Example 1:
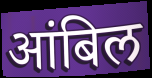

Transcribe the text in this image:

आंबिल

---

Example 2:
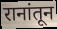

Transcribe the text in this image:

रानांतून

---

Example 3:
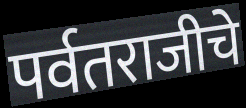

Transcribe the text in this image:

पर्वतराजीचे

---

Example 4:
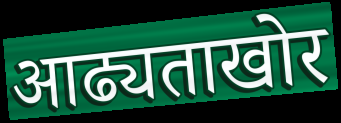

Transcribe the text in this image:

आढ्यताखोर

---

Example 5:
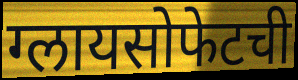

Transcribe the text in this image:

ग्लायसोफेटची